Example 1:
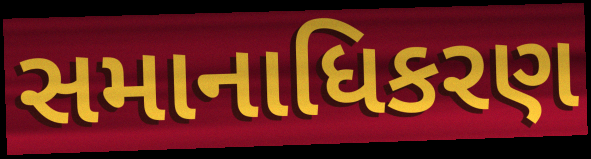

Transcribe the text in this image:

સમાનાધિકરણ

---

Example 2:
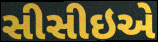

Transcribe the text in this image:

સીસીઇએ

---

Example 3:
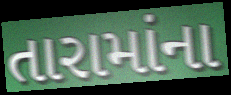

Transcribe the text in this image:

તારામાંના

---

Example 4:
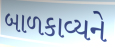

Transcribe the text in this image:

બાળકાવ્યને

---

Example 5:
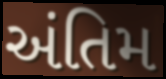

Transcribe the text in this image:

અંતિમ